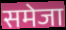
समेजा